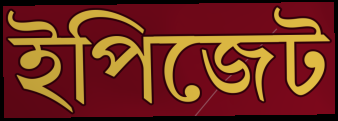
ইপিজেট